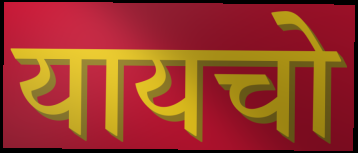
यायचो